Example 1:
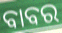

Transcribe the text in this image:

ବାବର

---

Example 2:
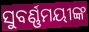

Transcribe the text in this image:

ସୁବର୍ଣ୍ଣମୟୀଙ୍କ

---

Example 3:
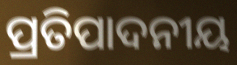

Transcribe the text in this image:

ପ୍ରତିପାଦନୀୟ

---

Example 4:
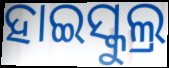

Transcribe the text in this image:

ହାଇସ୍କୁଲ୍ର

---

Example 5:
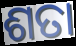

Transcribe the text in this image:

ଶତା